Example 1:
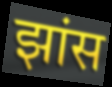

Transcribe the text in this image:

झांस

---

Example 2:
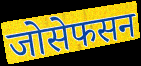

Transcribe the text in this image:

जोसेफसन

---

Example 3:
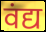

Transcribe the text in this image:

वंद्य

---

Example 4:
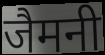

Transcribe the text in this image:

जैमनी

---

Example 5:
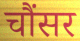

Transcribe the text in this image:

चौंसर